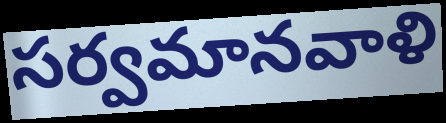
సర్వమానవాళి